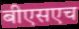
बीएसएच